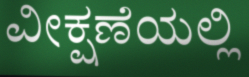
ವೀಕ್ಷಣೆಯಲ್ಲಿ